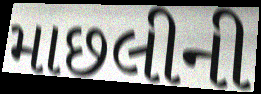
માછલીની